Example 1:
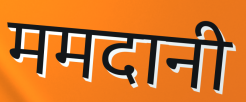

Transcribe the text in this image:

ममदानी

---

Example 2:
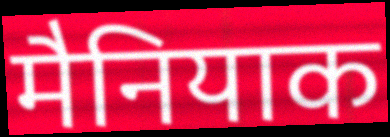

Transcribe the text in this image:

मैनियाक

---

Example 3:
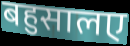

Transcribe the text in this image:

बहुसालए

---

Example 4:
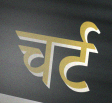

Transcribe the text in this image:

चर्ट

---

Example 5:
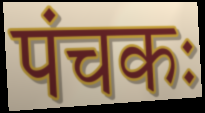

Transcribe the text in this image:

पंचकः